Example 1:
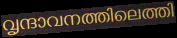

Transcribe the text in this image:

വൃന്ദാവനത്തിലെത്തി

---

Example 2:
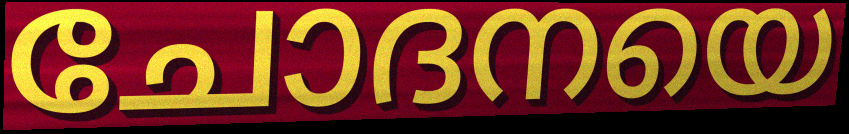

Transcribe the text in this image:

ചോദനയെ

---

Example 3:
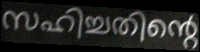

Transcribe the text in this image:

സഹിച്ചതിന്റെ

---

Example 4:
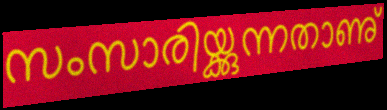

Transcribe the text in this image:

സംസാരിയ്ക്കുന്നതാണു്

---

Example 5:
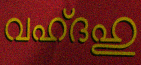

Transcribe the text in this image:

വഹ്ദഹു